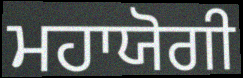
ਮਹਾਯੋਗੀ